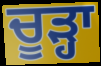
ਚੂੜ੍ਹਾ